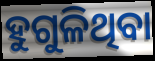
ହୁଗୁଳିଥିବା